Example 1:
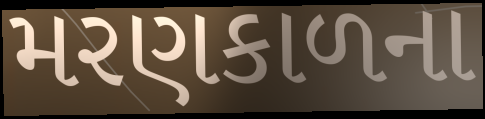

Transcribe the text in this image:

મરણકાળના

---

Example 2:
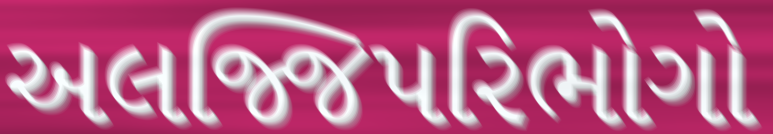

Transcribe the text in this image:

અલજ્જિપરિભોગો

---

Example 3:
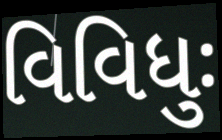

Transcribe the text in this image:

વિવિધુઃ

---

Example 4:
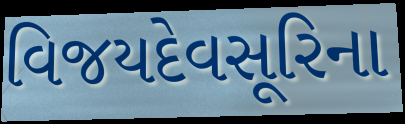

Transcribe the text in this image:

વિજયદેવસૂરિના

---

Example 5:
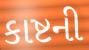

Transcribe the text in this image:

કાષ્ટની